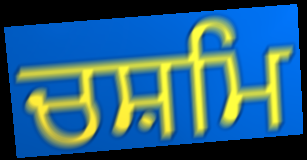
ਚਸ਼ਮਿ